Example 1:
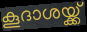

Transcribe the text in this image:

കൂദാശയ്ക്ക്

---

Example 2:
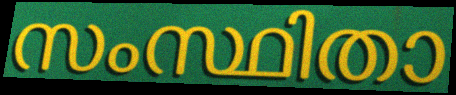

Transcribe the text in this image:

സംസ്ഥിതാ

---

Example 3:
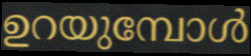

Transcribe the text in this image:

ഉറയുമ്പോൾ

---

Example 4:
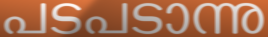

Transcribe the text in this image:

പടപടാന്നു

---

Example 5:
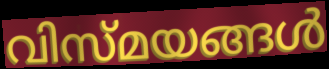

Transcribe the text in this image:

വിസ്മയങ്ങൾ